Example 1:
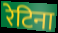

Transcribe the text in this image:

रेटिना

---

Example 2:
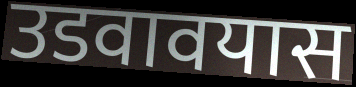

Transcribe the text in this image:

उडवावयास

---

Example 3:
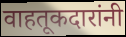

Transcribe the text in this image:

वाहतूकदारांनी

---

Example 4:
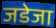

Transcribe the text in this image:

जडेजा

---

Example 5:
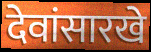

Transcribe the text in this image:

देवांसारखे